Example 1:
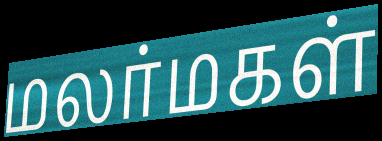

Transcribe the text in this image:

மலர்மகள்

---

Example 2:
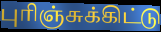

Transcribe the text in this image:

புரிஞ்சுக்கிட்டு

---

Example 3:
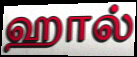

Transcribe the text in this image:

ஹால்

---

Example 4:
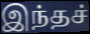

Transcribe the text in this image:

இந்தச்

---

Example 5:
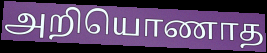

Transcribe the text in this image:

அறியொணாத